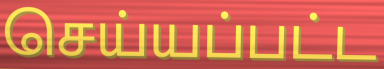
செய்யப்பட்ட